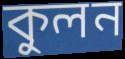
কুলন